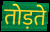
तोड़ते